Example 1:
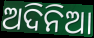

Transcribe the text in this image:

ଅଦିନିଆ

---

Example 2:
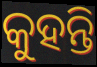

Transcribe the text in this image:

କୁହନ୍ତି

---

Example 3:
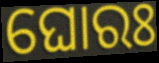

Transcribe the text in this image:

ଘୋରଃ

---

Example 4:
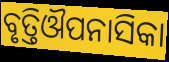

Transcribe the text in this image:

ବୃତ୍ତିଔପନାସିକା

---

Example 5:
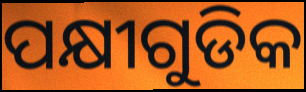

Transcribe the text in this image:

ପକ୍ଷୀଗୁଡିକ